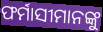
ଫର୍ମାସୀମାନଙ୍କୁ